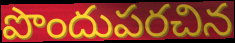
పొందుపరచిన